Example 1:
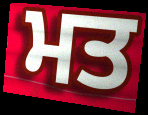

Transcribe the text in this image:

ਮਤ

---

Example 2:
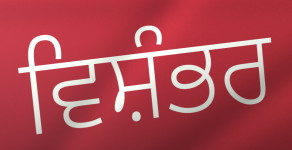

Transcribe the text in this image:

ਵਿਸ਼ੰਭਰ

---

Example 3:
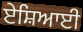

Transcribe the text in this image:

ਏਸ਼ਿਆਈ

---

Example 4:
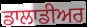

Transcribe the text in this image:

ਡਾਲਾਡੀਅਰ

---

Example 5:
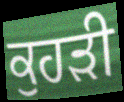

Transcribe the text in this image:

ਕੁਹੜੀ